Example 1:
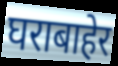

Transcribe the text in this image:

घराबाहेर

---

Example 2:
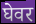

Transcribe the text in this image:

घेवर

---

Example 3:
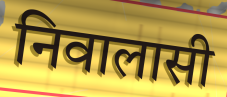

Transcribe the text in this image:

निवालासी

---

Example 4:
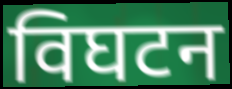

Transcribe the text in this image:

विघटन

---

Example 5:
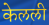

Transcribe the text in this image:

केलली